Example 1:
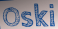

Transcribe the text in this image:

Oski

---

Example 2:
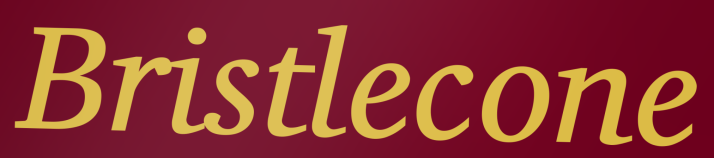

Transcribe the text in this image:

Bristlecone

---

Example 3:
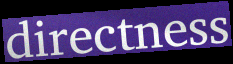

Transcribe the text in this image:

directness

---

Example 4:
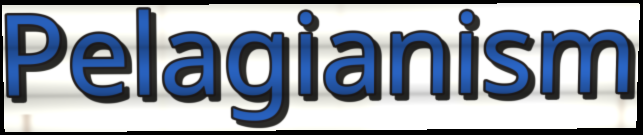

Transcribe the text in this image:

Pelagianism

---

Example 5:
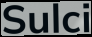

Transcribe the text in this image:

Sulci